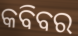
କବିବର